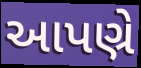
આપણ્રે